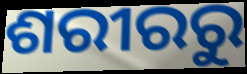
ଶରୀରରୁ